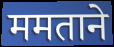
ममताने